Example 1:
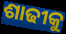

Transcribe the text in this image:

ଶାଢୀକୁ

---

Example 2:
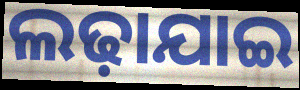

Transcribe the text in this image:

ଲଢ଼ାଯାଇ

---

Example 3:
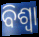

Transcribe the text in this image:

ବିଶ୍ବା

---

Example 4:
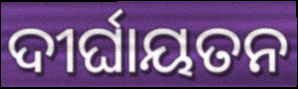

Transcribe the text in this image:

ଦୀର୍ଘାୟତନ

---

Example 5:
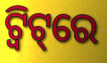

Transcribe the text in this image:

ଟ୍ବିଟ୍‌ରେ